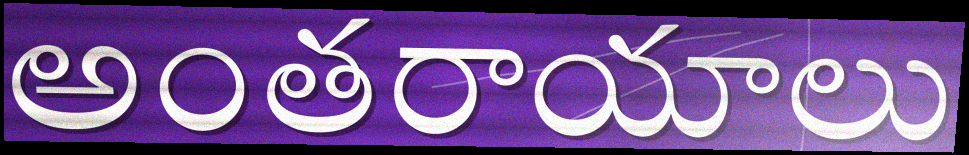
అంతరాయాలు